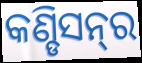
କଣ୍ଡିସନ୍‌ର